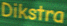
Dikstra